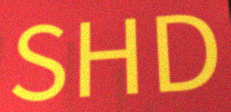
SHD